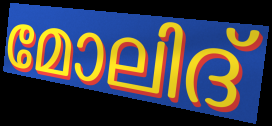
മോലിദ്